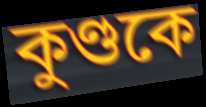
কুণ্ডকে